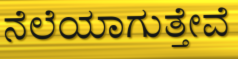
ನೆಲೆಯಾಗುತ್ತೇವೆ